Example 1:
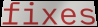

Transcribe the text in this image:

fixes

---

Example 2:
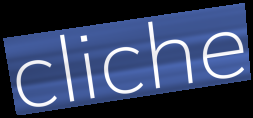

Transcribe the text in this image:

cliche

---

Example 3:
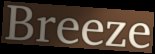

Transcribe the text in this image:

Breeze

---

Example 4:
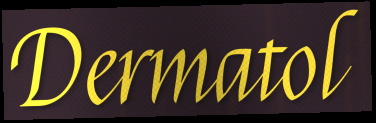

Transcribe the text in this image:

Dermatol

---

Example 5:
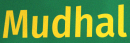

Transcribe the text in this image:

Mudhal